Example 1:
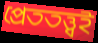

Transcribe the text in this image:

প্রেততত্ত্বই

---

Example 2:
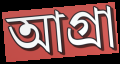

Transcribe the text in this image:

আগ্রা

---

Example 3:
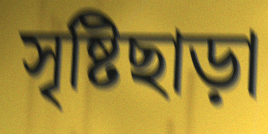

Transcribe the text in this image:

সৃষ্টিছাড়া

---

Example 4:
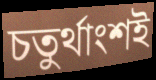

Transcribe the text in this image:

চতুর্থাংশই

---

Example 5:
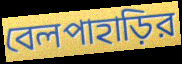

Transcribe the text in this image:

বেলপাহাড়ির